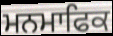
ਮਨਮਾਫਿਕ